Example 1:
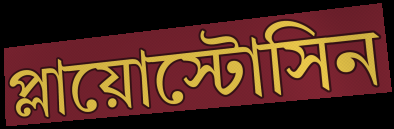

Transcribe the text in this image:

প্লায়োস্টোসিন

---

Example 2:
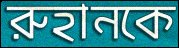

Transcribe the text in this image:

রুহানকে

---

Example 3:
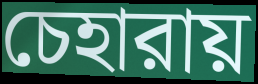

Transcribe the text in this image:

চেহারায়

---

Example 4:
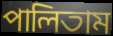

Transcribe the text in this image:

পালিতাম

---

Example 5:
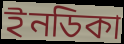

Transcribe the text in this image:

ইনডিকা